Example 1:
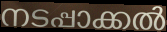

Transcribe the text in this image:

നടപ്പാക്കൽ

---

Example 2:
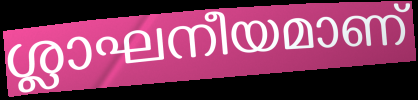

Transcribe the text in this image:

ശ്ലാഘനീയമാണ്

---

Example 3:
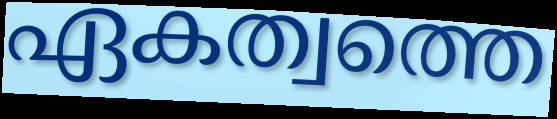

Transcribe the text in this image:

ഏകത്വത്തെ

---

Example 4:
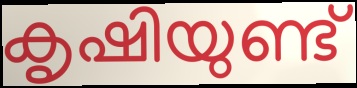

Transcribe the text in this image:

കൃഷിയുണ്ട്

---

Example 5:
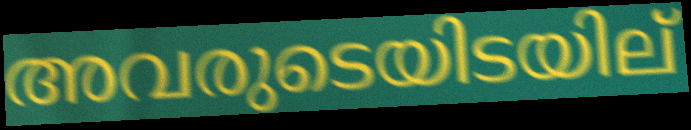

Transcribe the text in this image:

അവരുടെയിടയില്